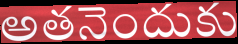
అతనెందుకు